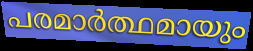
പരമാർത്ഥമായും